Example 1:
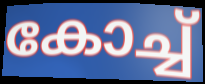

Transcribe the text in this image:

കോച്ച്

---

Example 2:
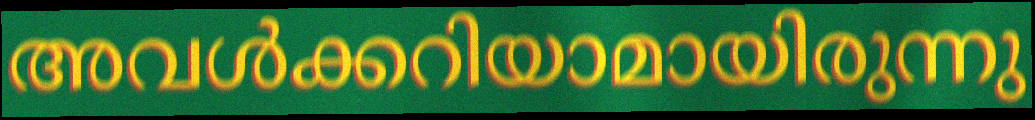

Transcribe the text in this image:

അവൾക്കറിയാമായിരുന്നു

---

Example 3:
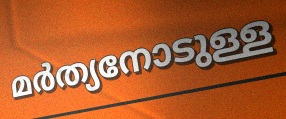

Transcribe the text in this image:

മർത്യനോടുള്ള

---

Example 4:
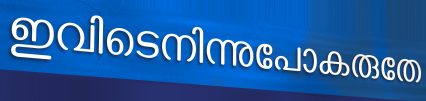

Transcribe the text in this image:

ഇവിടെനിന്നുപോകരുതേ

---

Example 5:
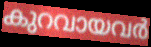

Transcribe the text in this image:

കുറവായവർ